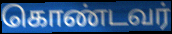
கொண்டவர்